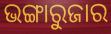
ଭଙ୍ଗାରୁଜାର